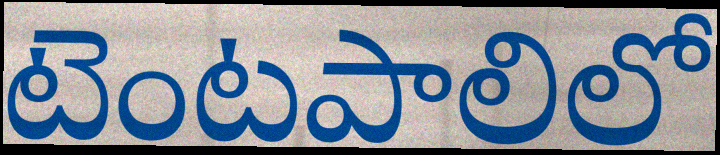
టెంటపాలిలో